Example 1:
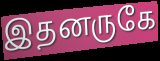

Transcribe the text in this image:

இதனருகே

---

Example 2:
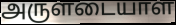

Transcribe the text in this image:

அருளடையாள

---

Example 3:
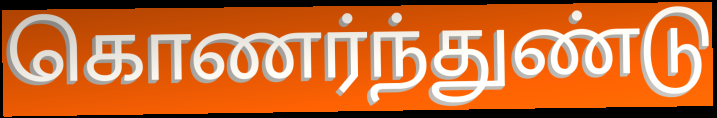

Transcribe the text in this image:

கொணர்ந்துண்டு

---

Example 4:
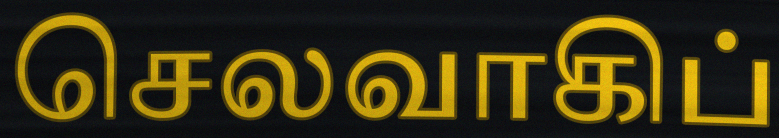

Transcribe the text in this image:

செலவாகிப்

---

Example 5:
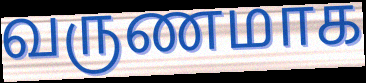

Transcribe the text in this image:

வருணமாக